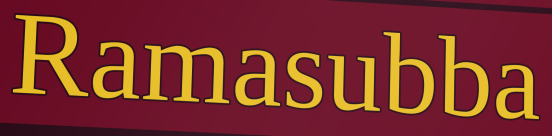
Ramasubba